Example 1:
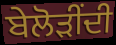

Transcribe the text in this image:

ਬੇਲੋੜੀਂਦੀ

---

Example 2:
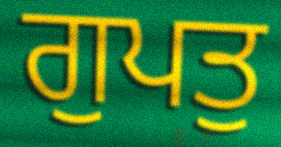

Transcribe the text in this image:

ਗੁਪਤੁ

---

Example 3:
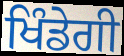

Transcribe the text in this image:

ਖਿੰਡੇਗੀ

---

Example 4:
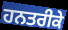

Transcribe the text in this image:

ਹਨਤਰੀਕੇ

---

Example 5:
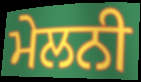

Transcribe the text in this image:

ਮੇਲਨੀ